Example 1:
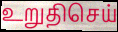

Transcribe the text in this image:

உறுதிசெய்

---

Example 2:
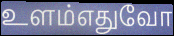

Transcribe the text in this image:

உளம்எதுவோ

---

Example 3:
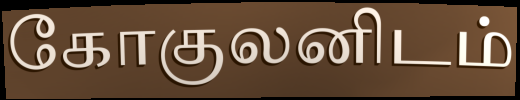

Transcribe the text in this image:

கோகுலனிடம்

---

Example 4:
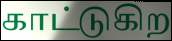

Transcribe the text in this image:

காட்டுகிற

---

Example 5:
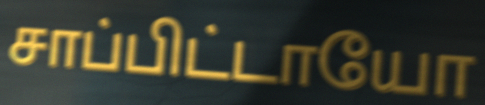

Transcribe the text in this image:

சாப்பிட்டாயோ